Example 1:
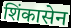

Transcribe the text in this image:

शिंकासेन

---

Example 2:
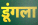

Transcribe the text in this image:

डूंगला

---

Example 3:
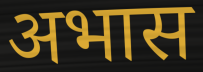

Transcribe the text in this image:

अभास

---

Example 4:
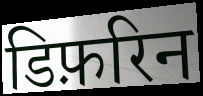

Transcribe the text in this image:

डिफ़रिन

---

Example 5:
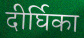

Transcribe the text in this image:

दीर्घिका